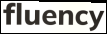
fluency